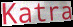
Katra